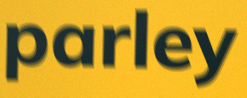
parley